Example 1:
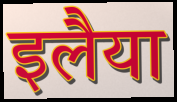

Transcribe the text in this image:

इलैया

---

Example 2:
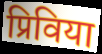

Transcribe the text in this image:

प्रिविया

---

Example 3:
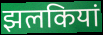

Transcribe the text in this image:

झलकियां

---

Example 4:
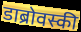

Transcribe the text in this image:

डाब्रोवस्की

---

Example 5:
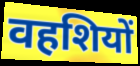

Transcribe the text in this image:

वहशियों